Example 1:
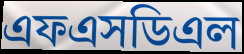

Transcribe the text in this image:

এফএসডিএল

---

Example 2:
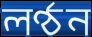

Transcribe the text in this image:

লণ্ঠন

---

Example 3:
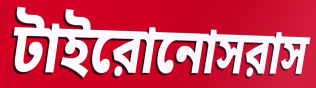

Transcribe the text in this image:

টাইরোনোসরাস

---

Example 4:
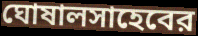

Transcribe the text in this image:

ঘোষালসাহেবের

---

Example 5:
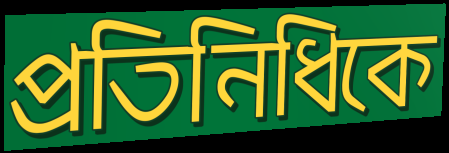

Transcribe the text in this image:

প্রতিনিধিকে